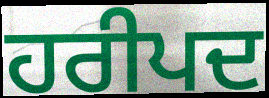
ਹਰੀਪਦ